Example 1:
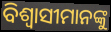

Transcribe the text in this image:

ବିଶ୍ୱାସୀମାନଙ୍କୁ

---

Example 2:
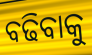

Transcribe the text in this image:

ବଢିବାକୁ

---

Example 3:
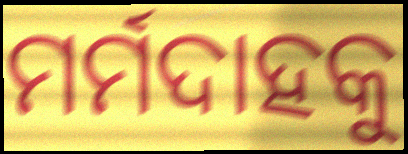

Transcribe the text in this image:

ମର୍ମଦାହକୁ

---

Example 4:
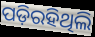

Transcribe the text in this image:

ପଡ଼ିରହିଥିଲି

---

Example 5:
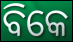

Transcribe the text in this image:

ବିକେ